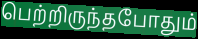
பெற்றிருந்தபோதும்